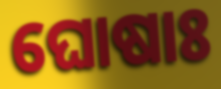
ଘୋଷାଃ